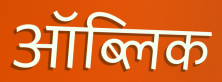
ऑब्लिक